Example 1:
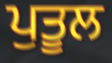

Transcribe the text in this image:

ਪੁਤੂਲ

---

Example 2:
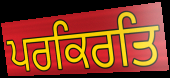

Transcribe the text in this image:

ਪਰਕਿਰਤਿ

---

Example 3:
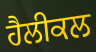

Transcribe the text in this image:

ਹੈਲੀਕਲ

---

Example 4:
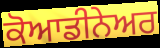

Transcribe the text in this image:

ਕੋਆਡੀਨੇਅਰ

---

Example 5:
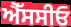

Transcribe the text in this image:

ਐੱਸਸੀਓ